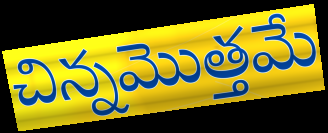
చిన్నమొత్తమే